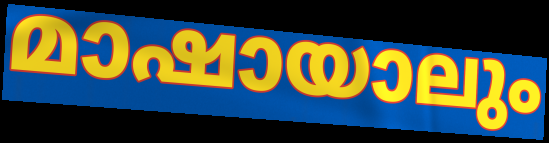
മാഷായാലും